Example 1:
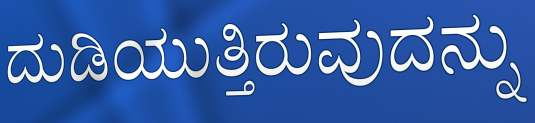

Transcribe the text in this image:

ದುಡಿಯುತ್ತಿರುವುದನ್ನು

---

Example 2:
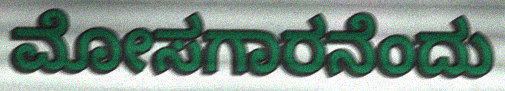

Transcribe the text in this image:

ಮೋಸಗಾರನೆಂದು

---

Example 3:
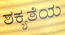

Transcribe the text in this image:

ಶಕ್ಯತೆಯ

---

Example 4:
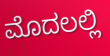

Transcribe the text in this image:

ಮೊದಲಲ್ಲಿ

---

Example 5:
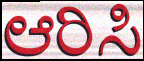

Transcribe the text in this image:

ಆರಿಸಿ